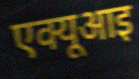
एक्यूआइ